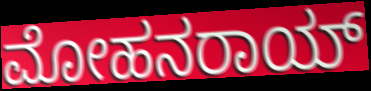
ಮೋಹನರಾಯ್